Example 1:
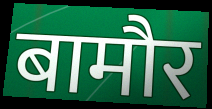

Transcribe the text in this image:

बामौर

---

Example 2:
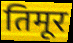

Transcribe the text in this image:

तिमूर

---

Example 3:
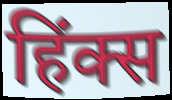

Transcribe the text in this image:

हिंक्स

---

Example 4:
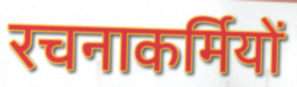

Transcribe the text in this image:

रचनाकर्मियों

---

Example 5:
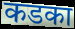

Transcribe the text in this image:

कडका